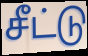
சீட்டு